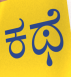
ಕಥೆ